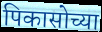
पिकासोच्या